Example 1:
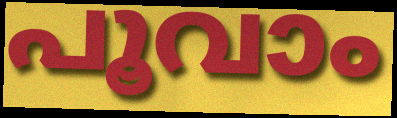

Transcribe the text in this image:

പൂവാം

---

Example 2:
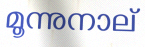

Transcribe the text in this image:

മൂന്നുനാല്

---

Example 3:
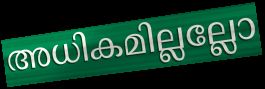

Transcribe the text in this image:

അധികമില്ലല്ലോ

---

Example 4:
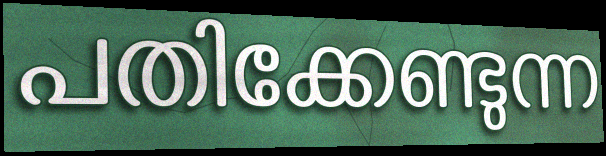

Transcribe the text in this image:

പതിക്കേണ്ടുന്ന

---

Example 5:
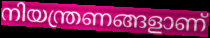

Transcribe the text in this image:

നിയന്ത്രണങ്ങളാണ്